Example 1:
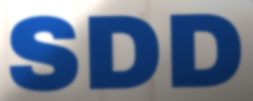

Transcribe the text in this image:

SDD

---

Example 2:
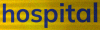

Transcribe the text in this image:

hospital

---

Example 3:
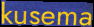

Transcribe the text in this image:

kusema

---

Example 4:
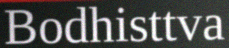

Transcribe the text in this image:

Bodhisttva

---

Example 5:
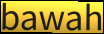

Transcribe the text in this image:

bawah